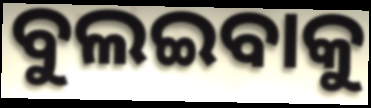
ବୁଲଇବାକୁ